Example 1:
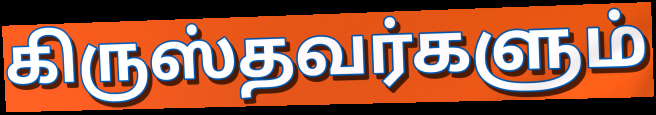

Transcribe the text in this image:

கிருஸ்தவர்களும்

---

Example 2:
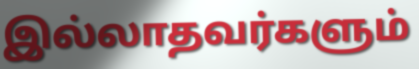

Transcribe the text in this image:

இல்லாதவர்களும்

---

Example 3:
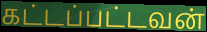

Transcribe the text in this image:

கட்டப்பட்டவன்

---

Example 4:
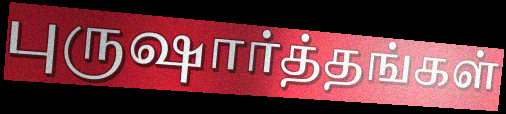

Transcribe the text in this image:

புருஷார்த்தங்கள்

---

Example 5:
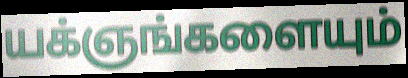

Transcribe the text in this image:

யக்ஞங்களையும்